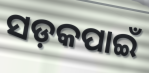
ସଡ଼କପାଇଁ